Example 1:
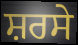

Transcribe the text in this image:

ਸ਼ਰਸੇ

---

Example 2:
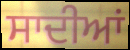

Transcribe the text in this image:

ਸਾਦੀਆਂ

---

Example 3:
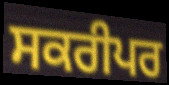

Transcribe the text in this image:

ਸਕਰੀਪਰ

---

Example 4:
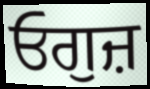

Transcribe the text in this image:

ਓਗੁਜ਼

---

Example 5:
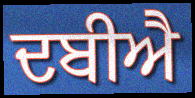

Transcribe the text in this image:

ਦਬੀਐ